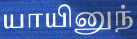
யாயினுந்